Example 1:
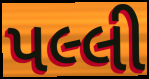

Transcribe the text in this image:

પલ્લી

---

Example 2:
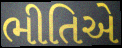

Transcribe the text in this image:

ભીતિએ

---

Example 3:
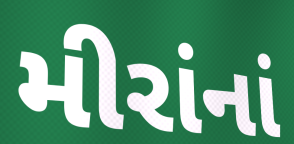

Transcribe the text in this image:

મીરાંનાં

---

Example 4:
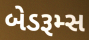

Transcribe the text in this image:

બેડરૂમ્સ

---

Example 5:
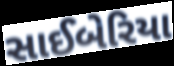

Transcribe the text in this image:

સાઈબેરિયા